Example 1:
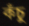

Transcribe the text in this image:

কঁচু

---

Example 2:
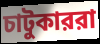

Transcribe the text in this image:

চাটুকাররা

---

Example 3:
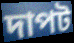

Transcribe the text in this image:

দাপট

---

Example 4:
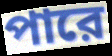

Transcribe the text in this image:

পারে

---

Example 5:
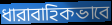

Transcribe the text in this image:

ধারাবাহিকভাবে